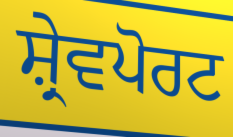
ਸ਼੍ਰੇਵਪੋਰਟ